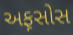
અફ઼સોસ